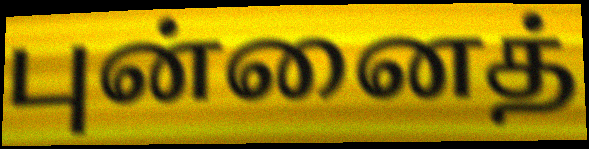
புன்னைத்